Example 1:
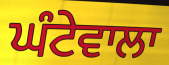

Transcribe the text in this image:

ਘੰਟੇਵਾਲਾ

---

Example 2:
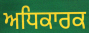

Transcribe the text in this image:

ਅਧਿਕਾਰਕ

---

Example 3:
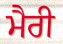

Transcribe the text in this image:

ਮੈਰੀ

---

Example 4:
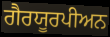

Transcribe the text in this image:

ਗੈਰਯੂਰਪੀਅਨ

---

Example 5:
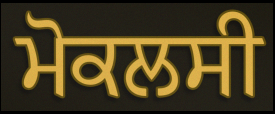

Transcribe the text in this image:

ਮੋਕਲਸੀ